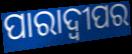
ପାରାଦ୍ବୀପର